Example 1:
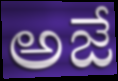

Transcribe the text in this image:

అజే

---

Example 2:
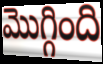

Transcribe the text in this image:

మొగ్గింది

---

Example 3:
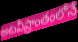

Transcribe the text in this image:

అటవీప్రాంతంలోనే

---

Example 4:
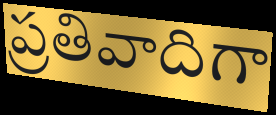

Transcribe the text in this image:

ప్రతివాదిగా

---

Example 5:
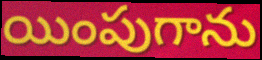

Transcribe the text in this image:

యింపుగాను